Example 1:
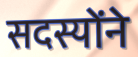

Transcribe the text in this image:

सदस्योंने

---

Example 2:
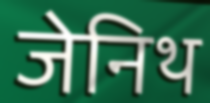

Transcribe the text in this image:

जेनिथ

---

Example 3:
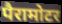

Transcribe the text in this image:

पैरामोटर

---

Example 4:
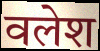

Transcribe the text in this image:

वलेश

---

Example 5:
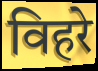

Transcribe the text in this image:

विहरे